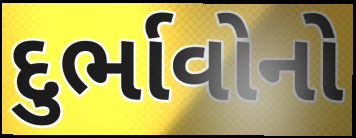
દુર્ભાવોનો